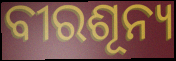
ବୀରଶୂନ୍ୟ